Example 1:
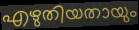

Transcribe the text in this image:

എഴുതിയതായും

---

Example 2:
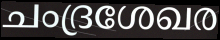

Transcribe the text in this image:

ചംദ്രശേഖര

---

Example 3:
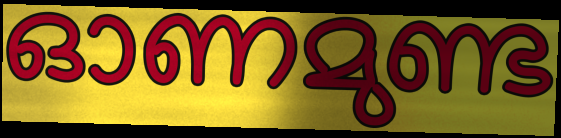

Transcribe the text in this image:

ഓണമുണ്ട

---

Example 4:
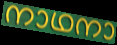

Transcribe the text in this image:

നാഥനാ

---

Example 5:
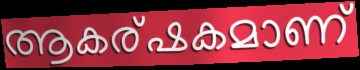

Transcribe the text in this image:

ആകര്ഷകമാണ്